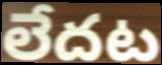
లేదట